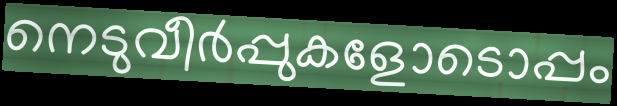
നെടുവീർപ്പുകളോടൊപ്പം